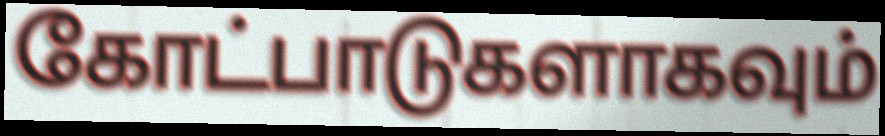
கோட்பாடுகளாகவும்